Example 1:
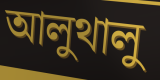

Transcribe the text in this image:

আলুথালু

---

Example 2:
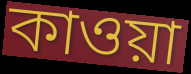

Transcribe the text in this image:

কাওয়া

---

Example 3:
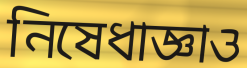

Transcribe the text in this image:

নিষেধাজ্ঞাও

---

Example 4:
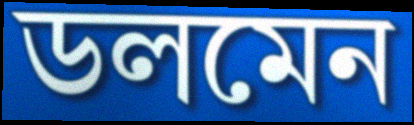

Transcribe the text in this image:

ডলমেন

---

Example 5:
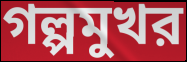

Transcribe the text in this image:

গল্পমুখর